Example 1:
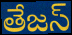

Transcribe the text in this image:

తేజస్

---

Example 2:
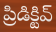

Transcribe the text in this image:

ప్రిడిక్టివ్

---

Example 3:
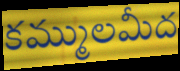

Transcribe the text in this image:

కమ్ములమీద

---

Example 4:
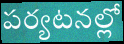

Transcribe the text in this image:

పర్యటనల్లో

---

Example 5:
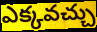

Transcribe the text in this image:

ఎక్కవచ్చు